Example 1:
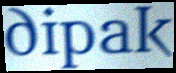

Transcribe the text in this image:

dipak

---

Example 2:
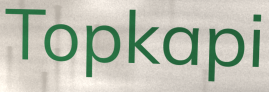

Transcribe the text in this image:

Topkapi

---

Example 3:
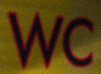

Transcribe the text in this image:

WC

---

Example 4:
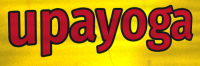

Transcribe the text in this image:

upayoga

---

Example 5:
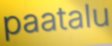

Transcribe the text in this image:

paatalu